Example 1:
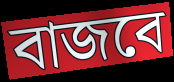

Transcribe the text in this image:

বাজবে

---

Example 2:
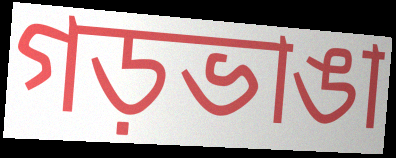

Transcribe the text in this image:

গড়ভাঙা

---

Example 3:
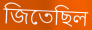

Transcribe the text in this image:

জিতেছিল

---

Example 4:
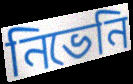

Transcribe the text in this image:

নিভেনি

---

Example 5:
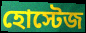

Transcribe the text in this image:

হোস্টেজ